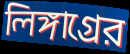
লিঙ্গাগ্রের